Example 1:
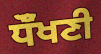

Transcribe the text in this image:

ਧੌਁਖਣੀ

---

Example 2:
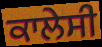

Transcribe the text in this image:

ਕਾਲੇਸੀ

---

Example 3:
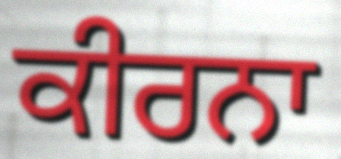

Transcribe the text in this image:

ਕੀਰਨਾ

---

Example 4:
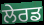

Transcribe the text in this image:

ਲੇਰਡ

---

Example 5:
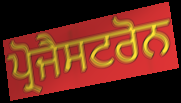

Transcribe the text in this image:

ਪ੍ਰੋਜੈਸਟਰੋਨ